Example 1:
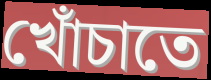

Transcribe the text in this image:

খোঁচাতে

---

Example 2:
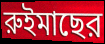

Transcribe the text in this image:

রুইমাছের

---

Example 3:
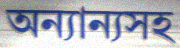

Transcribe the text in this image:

অন্যান্যসহ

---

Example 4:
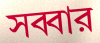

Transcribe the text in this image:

সব্বার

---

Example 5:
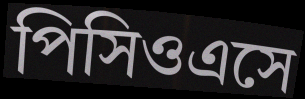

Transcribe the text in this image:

পিসিওএসে